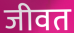
जीवत